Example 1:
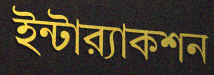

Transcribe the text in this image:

ইন্টার‍্যাকশন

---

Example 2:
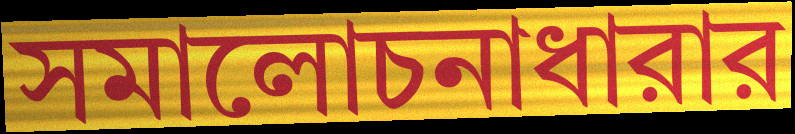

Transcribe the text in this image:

সমালোচনাধারার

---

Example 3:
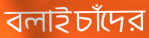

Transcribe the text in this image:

বলাইচাঁদের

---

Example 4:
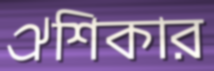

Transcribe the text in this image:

ঐশিকার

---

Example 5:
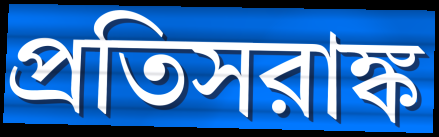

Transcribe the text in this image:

প্রতিসরাঙ্ক